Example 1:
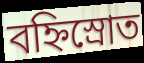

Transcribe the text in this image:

বহ্নিস্রোত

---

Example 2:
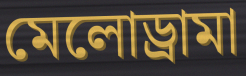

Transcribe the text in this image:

মেলোড্রামা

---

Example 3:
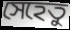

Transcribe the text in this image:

সেহেতু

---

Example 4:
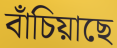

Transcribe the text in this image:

বাঁচিয়াছে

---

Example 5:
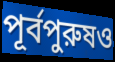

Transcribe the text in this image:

পূর্বপুরুষও